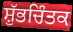
ਸ਼ੁੱਭਚਿੰਤਕ